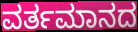
ವರ್ತಮಾನದ